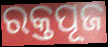
ରକ୍ତପୂଜ